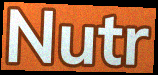
Nutr